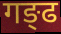
गङ्ढ